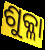
ଶୁକ୍ଳା